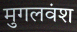
मुगलवंश